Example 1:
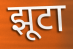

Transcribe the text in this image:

झूटा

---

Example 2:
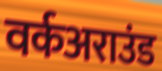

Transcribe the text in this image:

वर्कअराउंड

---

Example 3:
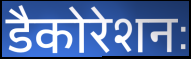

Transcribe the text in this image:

डैकोरेशनः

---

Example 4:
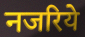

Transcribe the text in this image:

नजरिये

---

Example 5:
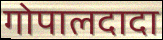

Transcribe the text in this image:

गोपालदादा